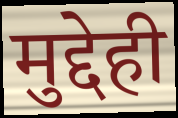
मुद्देही